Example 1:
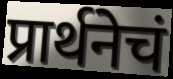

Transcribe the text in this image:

प्रार्थनेचं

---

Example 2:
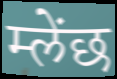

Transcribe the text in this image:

म्लेंछ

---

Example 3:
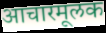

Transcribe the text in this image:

आचारमूलक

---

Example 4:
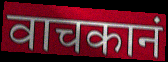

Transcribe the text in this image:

वाचकानं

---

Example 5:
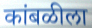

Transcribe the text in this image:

कांबळीला